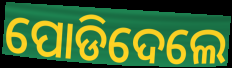
ପୋଡିଦେଲେ